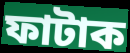
ফাটাক